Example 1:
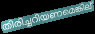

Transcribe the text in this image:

തിരിച്ചറിയണമെങ്കില്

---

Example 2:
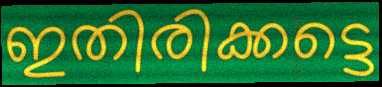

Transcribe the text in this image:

ഇതിരിക്കട്ടെ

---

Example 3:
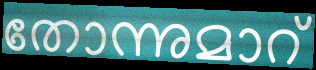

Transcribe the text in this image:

തോന്നുമാറ്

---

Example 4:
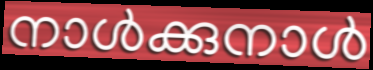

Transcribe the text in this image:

നാൾക്കുനാൾ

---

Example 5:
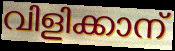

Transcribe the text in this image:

വിളിക്കാന്